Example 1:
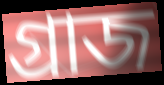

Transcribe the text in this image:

গ্ৰাজ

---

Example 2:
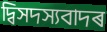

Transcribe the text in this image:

দ্বিসদস্যবাদৰ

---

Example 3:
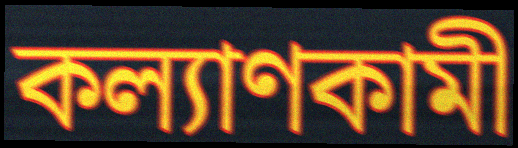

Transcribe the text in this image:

কল্যাণকামী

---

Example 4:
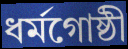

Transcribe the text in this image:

ধৰ্মগোষ্ঠী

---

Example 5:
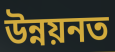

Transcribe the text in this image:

উন্নয়নত